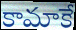
కామాకే